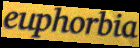
euphorbia